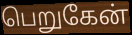
பெறுகேன்